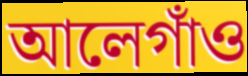
আলেগাঁও